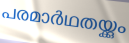
പരമാർഥതയ്ക്കും